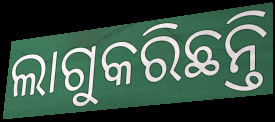
ଲାଗୁକରିଛନ୍ତି